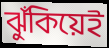
ঝুঁকিয়েই